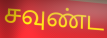
சவுண்ட